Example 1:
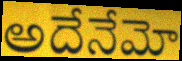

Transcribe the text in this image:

అదేనేమో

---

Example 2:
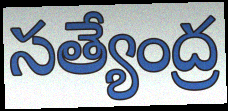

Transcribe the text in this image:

సత్యేంద్ర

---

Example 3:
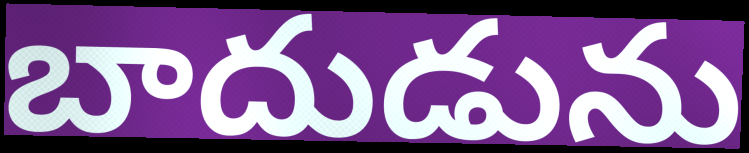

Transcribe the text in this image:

బాదుడును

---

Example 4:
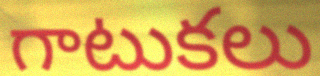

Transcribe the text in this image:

గాటుకలు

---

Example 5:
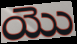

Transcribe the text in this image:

యొ